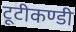
टूटीकण्डी